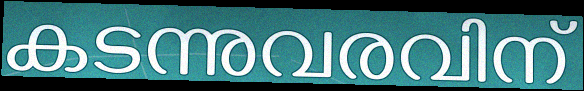
കടന്നുവരവിന്